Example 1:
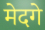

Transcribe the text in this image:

मेदगे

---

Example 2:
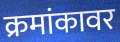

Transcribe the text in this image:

क्रमांकावर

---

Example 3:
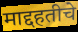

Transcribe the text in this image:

माद्दहतीचे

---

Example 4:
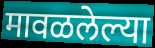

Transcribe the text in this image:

मावळलेल्या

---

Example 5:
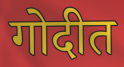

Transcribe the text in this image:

गोदीत